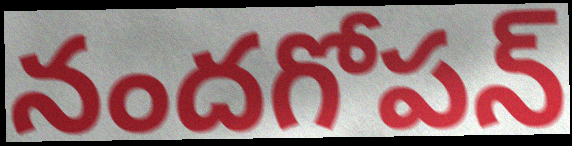
నందగోపన్